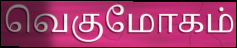
வெகுமோகம்